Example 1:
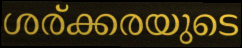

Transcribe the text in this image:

ശര്ക്കരയുടെ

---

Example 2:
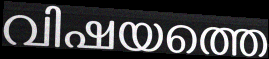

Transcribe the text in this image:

വിഷയത്തെ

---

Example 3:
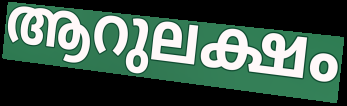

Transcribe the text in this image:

ആറുലക്ഷം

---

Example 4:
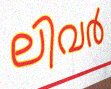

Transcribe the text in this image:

ലിവർ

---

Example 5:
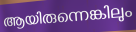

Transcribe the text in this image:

ആയിരുന്നെങ്കിലും